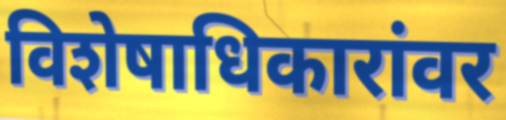
विशेषाधिकारांवर